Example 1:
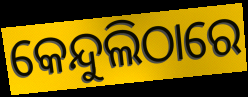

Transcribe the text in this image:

କେନ୍ଦୁଲିଠାରେ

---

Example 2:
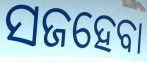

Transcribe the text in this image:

ସଜହେବା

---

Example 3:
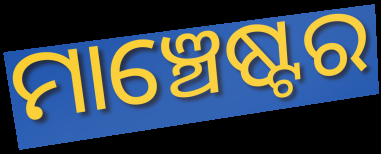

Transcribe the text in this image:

ମାଞ୍ଚେଷ୍ଟର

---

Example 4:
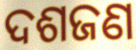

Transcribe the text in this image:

ଦଶଜଣ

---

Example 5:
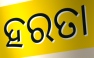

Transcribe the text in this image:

ହରତା